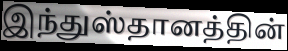
இந்துஸ்தானத்தின்